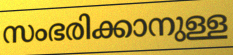
സംഭരിക്കാനുള്ള